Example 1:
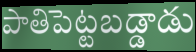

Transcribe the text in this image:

పాతిపెట్టబడ్డాడు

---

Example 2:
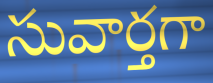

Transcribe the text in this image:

సువార్తగా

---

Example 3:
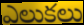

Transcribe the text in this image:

ఎలుకలు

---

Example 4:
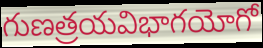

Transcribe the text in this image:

గుణత్రయవిభాగయోగో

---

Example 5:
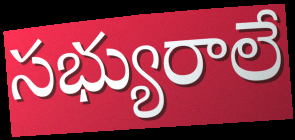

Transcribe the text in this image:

సభ్యురాలే